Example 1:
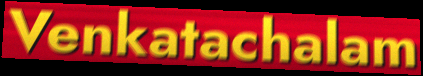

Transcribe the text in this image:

Venkatachalam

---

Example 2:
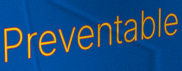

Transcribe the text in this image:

Preventable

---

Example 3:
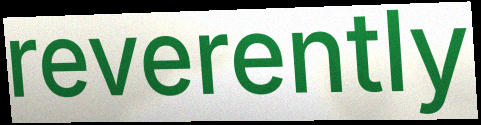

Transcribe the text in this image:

reverently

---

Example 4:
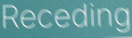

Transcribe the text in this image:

Receding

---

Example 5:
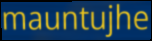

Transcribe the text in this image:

mauntujhe